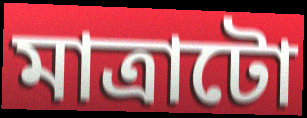
মাত্ৰাটো